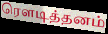
ரௌடித்தனம்